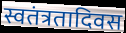
स्वतंत्रतादिवस